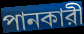
পানকারী